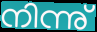
നിന്നു്